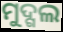
ମୁଦ୍ଗଲ